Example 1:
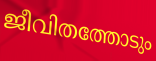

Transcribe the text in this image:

ജീവിതത്തോടും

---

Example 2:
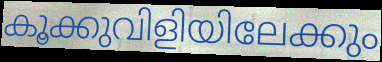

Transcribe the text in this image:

കൂക്കുവിളിയിലേക്കും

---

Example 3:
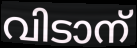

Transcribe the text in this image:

വിടാന്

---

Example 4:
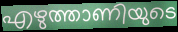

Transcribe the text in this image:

എഴുത്താണിയുടെ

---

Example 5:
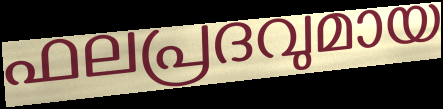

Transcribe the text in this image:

ഫലപ്രദവുമായ